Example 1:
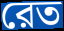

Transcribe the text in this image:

রেত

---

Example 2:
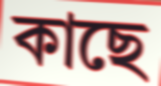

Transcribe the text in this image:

কাছে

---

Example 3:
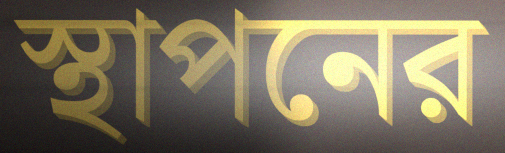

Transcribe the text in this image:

স্থাপনের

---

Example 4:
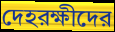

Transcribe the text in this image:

দেহরক্ষীদের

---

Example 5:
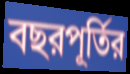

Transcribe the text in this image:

বছরপূর্তির